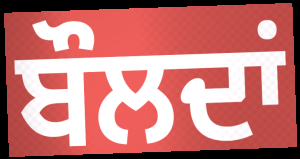
ਬੌਲਦਾਂ